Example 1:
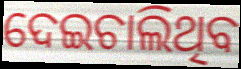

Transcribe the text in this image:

ଦେଇଚାଲିଥିବ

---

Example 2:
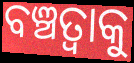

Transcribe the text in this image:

ବଞ୍ଚତ୍ବାକୁ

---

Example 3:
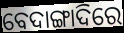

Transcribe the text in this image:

ବେଦାଙ୍ଗାଦିରେ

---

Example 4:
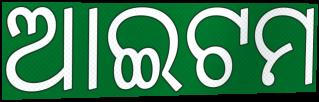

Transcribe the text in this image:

ଆଇଟମ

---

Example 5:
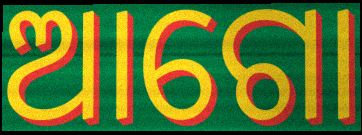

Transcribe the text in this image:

ଆଗୋ